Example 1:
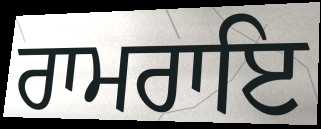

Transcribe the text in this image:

ਰਾਮਰਾਇ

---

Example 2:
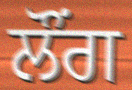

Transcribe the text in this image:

ਲੌਂਗ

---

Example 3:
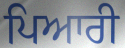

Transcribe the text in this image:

ਪਿਆਰੀ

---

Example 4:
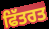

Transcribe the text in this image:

ਫਿੱਤਰਤ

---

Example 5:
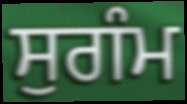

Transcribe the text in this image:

ਸੁਗੰਮ